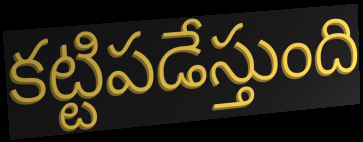
కట్టిపడేస్తుంది